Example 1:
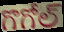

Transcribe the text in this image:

గొగోల్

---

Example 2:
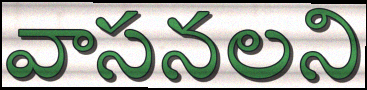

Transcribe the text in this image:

వాసనలని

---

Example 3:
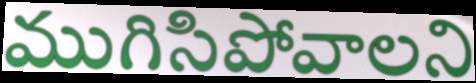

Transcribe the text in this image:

ముగిసిపోవాలని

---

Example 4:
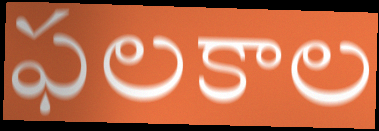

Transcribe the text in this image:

ఫలకాల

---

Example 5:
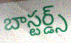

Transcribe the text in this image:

బాస్టర్డ్స్